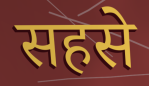
सहसे